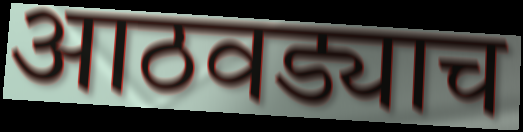
आठवड्याच